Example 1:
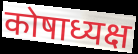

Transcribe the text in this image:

कोषाध्यक्ष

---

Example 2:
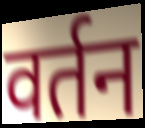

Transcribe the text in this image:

वर्तन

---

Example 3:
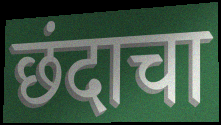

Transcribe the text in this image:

छंदाचा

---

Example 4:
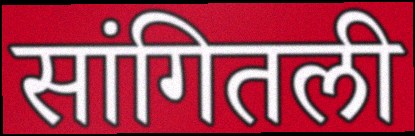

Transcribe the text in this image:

सांगितली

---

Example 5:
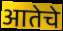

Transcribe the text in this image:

आतेचे